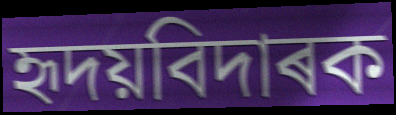
হৃদয়বিদাৰক